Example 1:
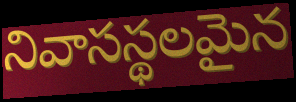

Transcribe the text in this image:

నివాసస్థలమైన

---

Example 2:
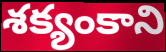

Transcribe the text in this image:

శక్యంకాని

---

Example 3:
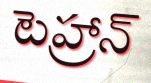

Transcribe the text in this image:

టెహ్రాన్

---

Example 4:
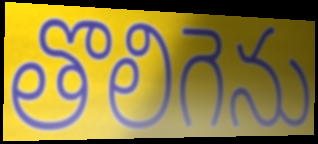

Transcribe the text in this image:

తొలిగెను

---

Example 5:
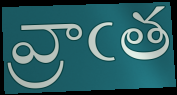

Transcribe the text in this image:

వ్రాఁత